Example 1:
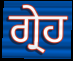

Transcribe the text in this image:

ਗ੍ਰੇਹ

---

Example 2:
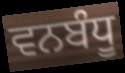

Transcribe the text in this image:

ਵਨਬੰਧੂ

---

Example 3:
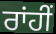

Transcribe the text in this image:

ਰਾਂਹੀਂ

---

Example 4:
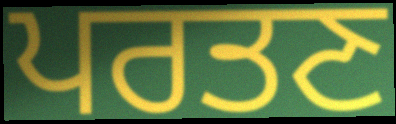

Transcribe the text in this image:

ਪਰਤਣ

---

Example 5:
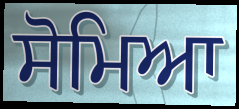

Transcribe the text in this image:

ਸੋਮਿਆ